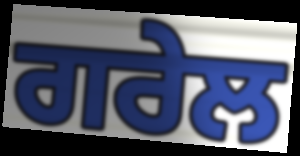
ਗਰੇਲ